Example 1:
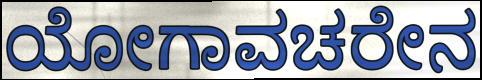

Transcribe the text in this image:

ಯೋಗಾವಚರೇನ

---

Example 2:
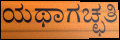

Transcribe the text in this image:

ಯಥಾಗಚ್ಛತಿ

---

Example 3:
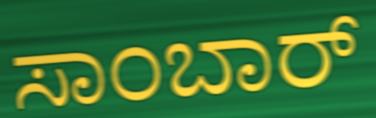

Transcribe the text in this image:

ಸಾಂಬಾರ್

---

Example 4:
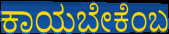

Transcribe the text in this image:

ಕಾಯಬೇಕೆಂಬ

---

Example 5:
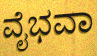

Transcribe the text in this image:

ವೈಭವಾ